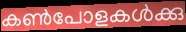
കൺപോളകൾക്കു